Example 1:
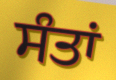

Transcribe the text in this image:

ਸੰਤਾਂ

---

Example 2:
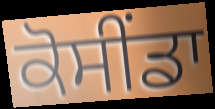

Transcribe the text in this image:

ਕੋਸੀਂਡਾ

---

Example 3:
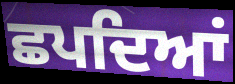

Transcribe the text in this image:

ਛਪਦਿਆਂ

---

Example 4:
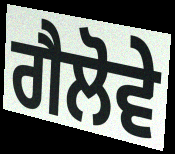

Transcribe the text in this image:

ਗੈਲੋਵੇ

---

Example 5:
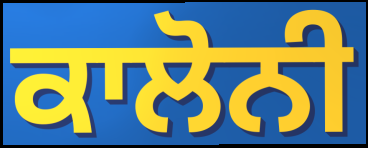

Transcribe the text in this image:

ਕਾਲੋਨੀ